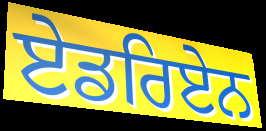
ਏਡਰਿਏਨ